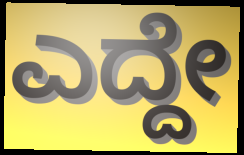
ಎದ್ದೇ